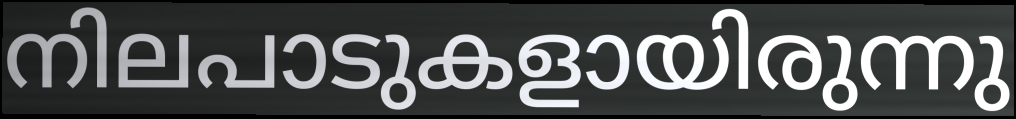
നിലപാടുകളായിരുന്നു